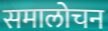
समालोचन